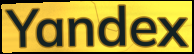
Yandex